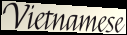
Vietnamese